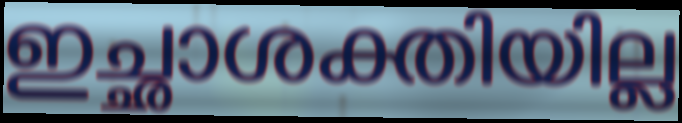
ഇച്ഛാശക്തിയില്ല